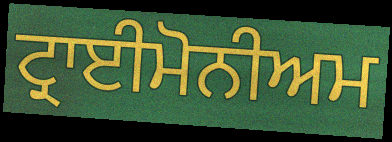
ਟ੍ਰਾਈਮੋਨੀਅਮ